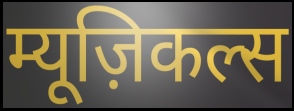
म्यूज़िकल्स